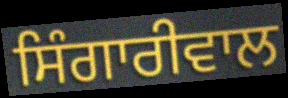
ਸਿੰਗਾਰੀਵਾਲ